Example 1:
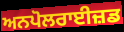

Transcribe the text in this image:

ਅਨਪੋਲਰਾਈਜ਼ਡ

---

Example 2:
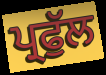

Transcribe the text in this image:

ਪ੍ਰਫੁੱਲ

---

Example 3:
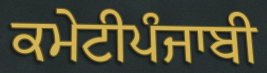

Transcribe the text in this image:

ਕਮੇਟੀਪੰਜਾਬੀ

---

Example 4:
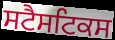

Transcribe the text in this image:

ਸਟੈਸਟਿਕਸ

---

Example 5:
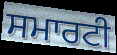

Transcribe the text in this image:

ਸਮਾਰਟੀ